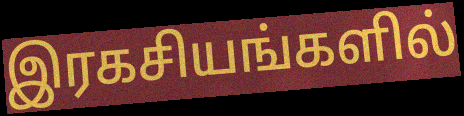
இரகசியங்களில்